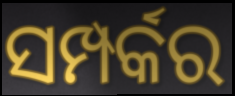
ସମ୍ପର୍କର